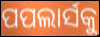
ପପଲାର୍ସକୁ